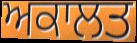
ਅਕਾਲਤ